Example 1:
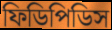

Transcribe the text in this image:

ফিডিপিডিস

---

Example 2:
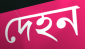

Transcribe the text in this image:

দেহন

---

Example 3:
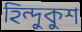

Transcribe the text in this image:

হিন্দুকুশ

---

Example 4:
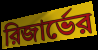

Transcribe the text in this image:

রিজার্ভের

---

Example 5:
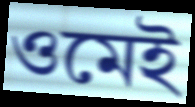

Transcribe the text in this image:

ওমেই